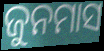
ଜୁନମାସ